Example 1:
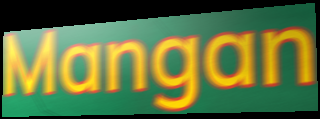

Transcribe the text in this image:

Mangan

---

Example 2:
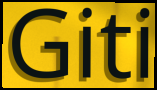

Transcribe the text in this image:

Giti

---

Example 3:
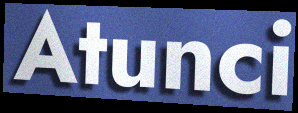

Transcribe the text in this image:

Atunci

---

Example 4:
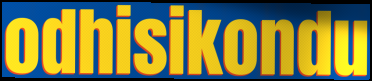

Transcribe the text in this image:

odhisikondu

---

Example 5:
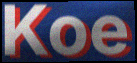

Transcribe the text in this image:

Koe